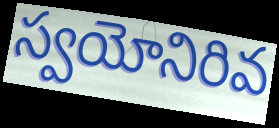
స్వయోనిరివ